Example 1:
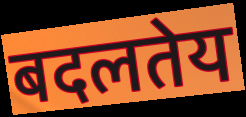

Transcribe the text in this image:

बदलतेय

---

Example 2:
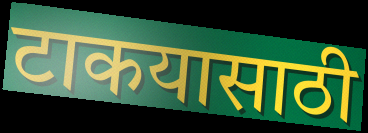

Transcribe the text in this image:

टाकयासाठी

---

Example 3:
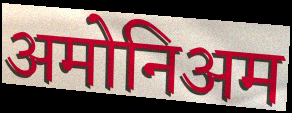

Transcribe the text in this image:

अमोनिअम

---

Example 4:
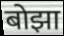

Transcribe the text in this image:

बोझा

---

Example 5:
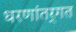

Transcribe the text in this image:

धरणांतर्गत